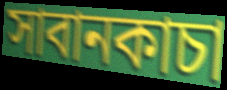
সাবানকাচা